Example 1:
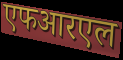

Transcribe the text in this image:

एफआरएल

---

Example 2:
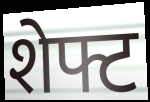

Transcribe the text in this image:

शेफ्ट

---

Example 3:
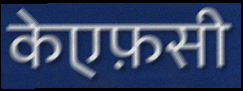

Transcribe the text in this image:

केएफ़सी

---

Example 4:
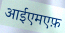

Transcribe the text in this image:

आईएमएफ़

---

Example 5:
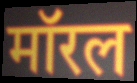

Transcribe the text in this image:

मॉरल